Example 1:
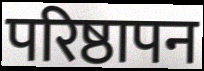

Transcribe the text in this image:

परिष्ठापन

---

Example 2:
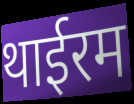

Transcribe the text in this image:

थाईरम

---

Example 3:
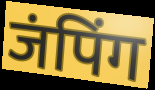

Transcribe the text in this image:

जंपिंग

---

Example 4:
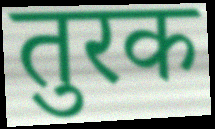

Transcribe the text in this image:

तुरक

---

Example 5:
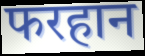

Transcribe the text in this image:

फरहान